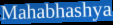
Mahabhashya